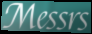
Messrs